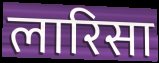
लारिसा